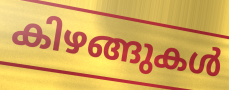
കിഴങ്ങുകൾ